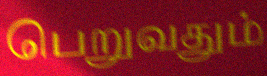
பெறுவதும்